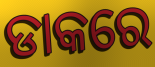
ଡାକରେ